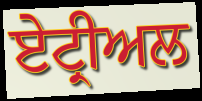
ਏਟ੍ਰੀਅਲ